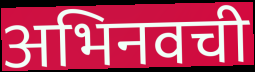
अभिनवची